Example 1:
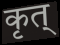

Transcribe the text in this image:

कृत्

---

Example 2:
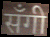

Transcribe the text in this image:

सँगी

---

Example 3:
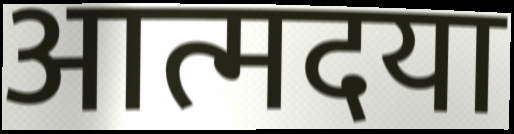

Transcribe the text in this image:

आत्मदया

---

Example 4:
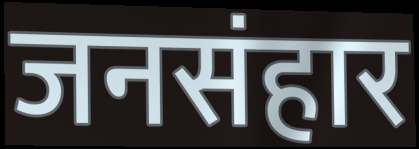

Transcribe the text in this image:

जनसंहार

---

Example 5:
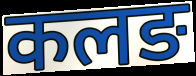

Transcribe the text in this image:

कलङ